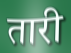
तारी